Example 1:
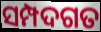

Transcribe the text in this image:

ସମ୍ପଦଗତ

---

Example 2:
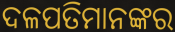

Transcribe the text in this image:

ଦଳପତିମାନଙ୍କର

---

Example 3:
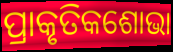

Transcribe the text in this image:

ପ୍ରାକୃତିକଶୋଭା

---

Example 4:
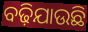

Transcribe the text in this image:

ବଢ଼ିଯାଉଛି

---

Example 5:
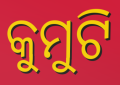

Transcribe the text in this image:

କୁମୁଟି